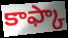
కాఫ్కా